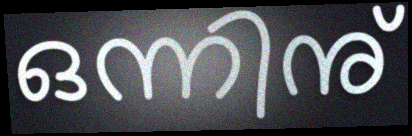
ഒന്നിനു്